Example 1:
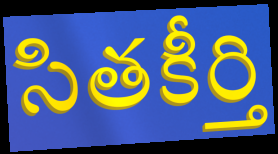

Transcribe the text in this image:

సితకీర్తి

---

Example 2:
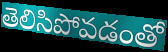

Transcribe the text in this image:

తెలిసిపోవడంతో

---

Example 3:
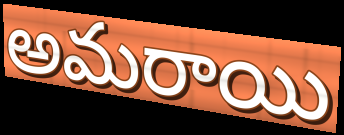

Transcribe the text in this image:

అమరాయి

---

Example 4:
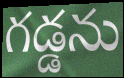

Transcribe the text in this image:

గడ్డను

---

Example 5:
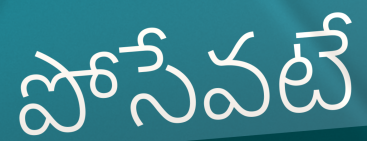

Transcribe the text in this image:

పోసేవటే